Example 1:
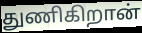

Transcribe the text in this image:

துணிகிறான்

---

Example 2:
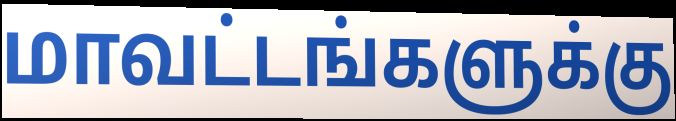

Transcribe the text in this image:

மாவட்டங்களுக்கு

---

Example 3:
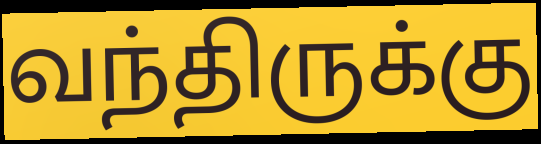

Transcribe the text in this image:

வந்திருக்கு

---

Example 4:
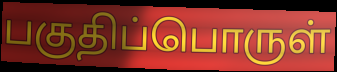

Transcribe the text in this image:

பகுதிப்பொருள்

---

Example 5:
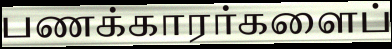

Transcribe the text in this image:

பணக்காரர்களைப்